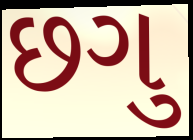
છગુ